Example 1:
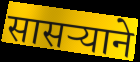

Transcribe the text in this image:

सासऱ्याने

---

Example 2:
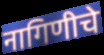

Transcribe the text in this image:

नागिणीचे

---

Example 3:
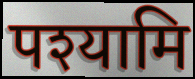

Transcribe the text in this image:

पश्यामि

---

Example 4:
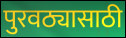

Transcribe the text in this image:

पुरवठ्यासाठी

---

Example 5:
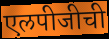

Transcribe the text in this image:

एलपीजीची